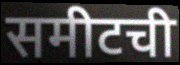
समीटची